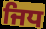
ਜਿਧ